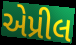
એપ્રીલ